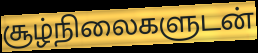
சூழ்நிலைகளுடன்